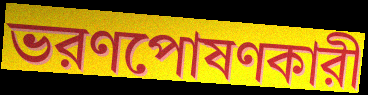
ভরণপোষণকারী